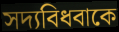
সদ্যবিধবাকে